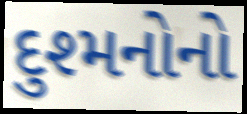
દુશ્મનોનો